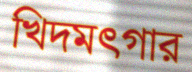
খিদমৎগার